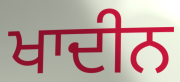
ਖਾਦੀਨ